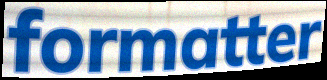
formatter